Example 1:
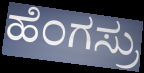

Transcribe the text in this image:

ಹೆಂಗಸ್ರು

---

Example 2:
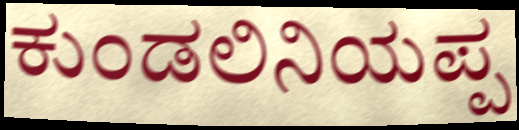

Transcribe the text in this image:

ಕುಂಡಲಿನಿಯಪ್ಪ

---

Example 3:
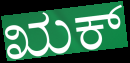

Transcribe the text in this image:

ಋಕ್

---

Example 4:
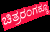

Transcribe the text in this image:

ಚಿತ್ರರಂಗಕ್ಕೂ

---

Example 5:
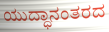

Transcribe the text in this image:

ಯುದ್ಧಾನಂತರದ